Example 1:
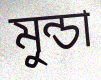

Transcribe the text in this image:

মুন্ডা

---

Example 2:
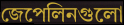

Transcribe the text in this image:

জেপেলিনগুলো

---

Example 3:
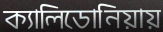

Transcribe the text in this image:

ক্যালিডোনিয়ায়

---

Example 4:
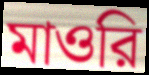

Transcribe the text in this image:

মাওরি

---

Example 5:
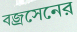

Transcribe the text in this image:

বজ্রসেনের